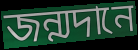
জন্মদানে